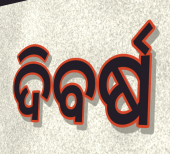
ଦିବର୍ଷ